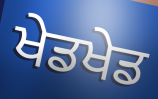
ਖੇਡਖੇਡ